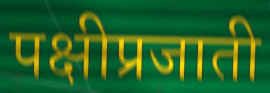
पक्षीप्रजाती